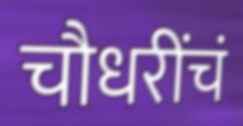
चौधरींचं